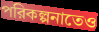
পরিকল্পনাতেও